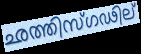
ഛത്തിസ്ഗഢില്